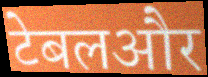
टेबलऔर